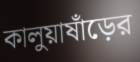
কালুয়াষাঁড়ের